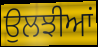
ਉਲਝੀਆਂ